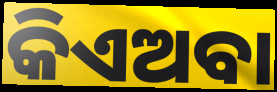
କିଏଅବା